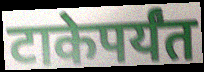
टाकेपर्यंत